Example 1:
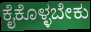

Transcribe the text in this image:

ಕೈಕೊಳ್ಳಬೇಕು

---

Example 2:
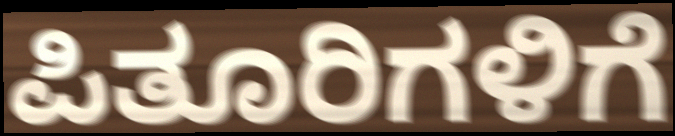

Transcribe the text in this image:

ಪಿತೂರಿಗಳಿಗೆ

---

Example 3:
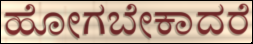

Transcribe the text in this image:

ಹೋಗಬೇಕಾದರೆ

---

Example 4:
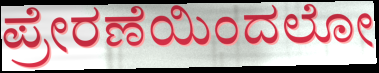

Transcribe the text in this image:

ಪ್ರೇರಣೆಯಿಂದಲೋ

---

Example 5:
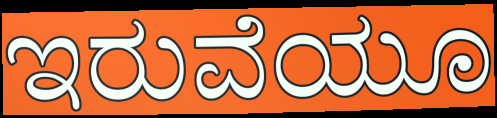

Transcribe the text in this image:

ಇರುವೆಯೂ